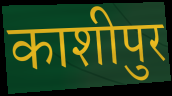
काशीपुर